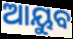
ଆୟୁବ